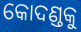
କୋଦଣ୍ଡକୁ